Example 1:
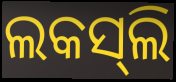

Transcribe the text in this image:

ଲକସ୍‍ଲି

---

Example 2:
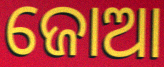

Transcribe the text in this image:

ଜୋଆ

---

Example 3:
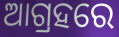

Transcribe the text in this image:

ଆଗ୍ରହରେ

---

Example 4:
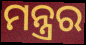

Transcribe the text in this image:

ମନ୍ତ୍ରର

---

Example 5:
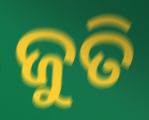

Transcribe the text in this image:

ଜୁତି